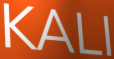
KALI